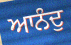
ਆਨੰਦੁ